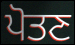
ਪੋਤਣ